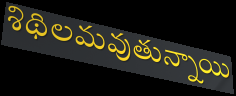
శిథిలమవుతున్నాయి